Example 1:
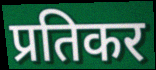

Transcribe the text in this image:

प्रतिकर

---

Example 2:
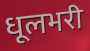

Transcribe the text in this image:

धूलभरी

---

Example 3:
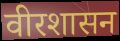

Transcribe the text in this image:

वीरशासन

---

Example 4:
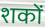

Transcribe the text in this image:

शकों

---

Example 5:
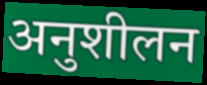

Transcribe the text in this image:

अनुशीलन